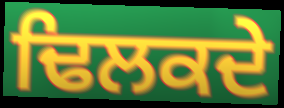
ਢਿਲਕਦੇ